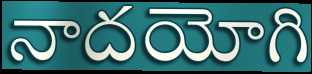
నాదయోగి